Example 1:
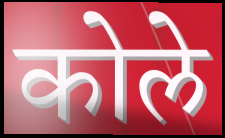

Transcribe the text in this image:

कोले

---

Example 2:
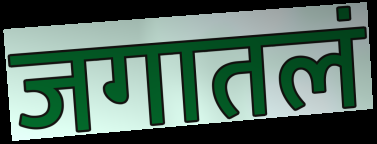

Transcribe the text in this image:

जगातलं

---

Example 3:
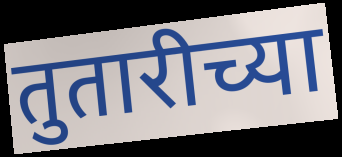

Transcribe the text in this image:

तुतारीच्या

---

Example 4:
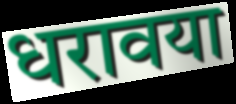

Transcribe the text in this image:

धरावया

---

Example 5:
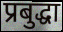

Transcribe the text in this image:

प्रबुद्धा